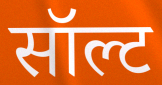
सॉल्ट